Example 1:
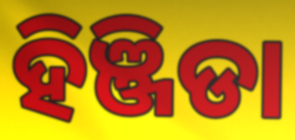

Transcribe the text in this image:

ହିଞ୍ଜିଡା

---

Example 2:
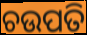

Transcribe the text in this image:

ଚଉପତି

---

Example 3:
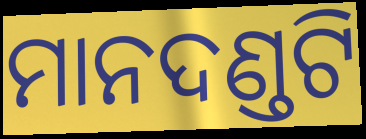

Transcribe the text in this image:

ମାନଦଣ୍ଡଟି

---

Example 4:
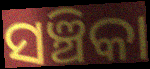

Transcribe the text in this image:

ସଞ୍ଚିକା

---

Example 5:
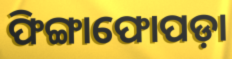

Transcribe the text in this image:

ଫିଙ୍ଗାଫୋପଡ଼ା